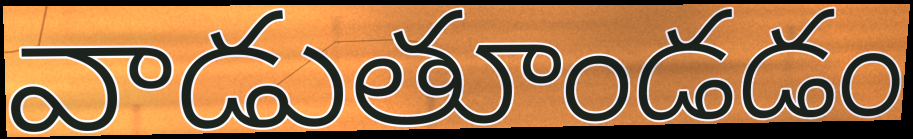
వాడుతూండడం